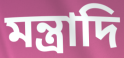
মন্ত্রাদি